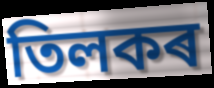
তিলকৰ